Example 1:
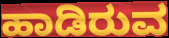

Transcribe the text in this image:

ಹಾಡಿರುವ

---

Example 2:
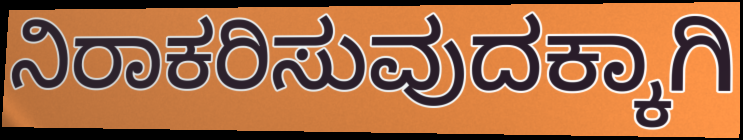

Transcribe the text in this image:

ನಿರಾಕರಿಸುವುದಕ್ಕಾಗಿ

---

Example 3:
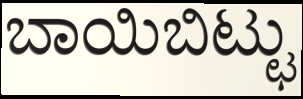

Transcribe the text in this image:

ಬಾಯಿಬಿಟ್ಟು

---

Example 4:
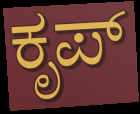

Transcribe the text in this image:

ಕೃಪ್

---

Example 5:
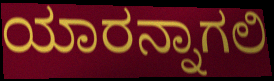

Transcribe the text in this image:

ಯಾರನ್ನಾಗಲಿ